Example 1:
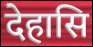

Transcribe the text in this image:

देहासि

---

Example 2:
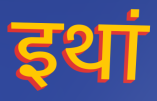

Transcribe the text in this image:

इथां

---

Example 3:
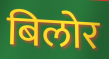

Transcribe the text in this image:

बिलोर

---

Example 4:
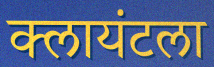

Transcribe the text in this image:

क्लायंटला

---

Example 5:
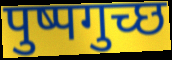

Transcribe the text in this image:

पुष्पगुच्छ